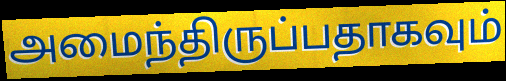
அமைந்திருப்பதாகவும்